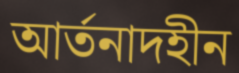
আর্তনাদহীন